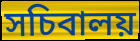
সচিবালয়